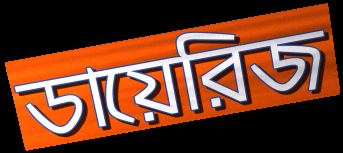
ডায়েরিজ